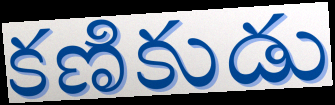
కణికుడు